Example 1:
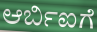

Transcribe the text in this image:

ಆರ್ಬಿಐಗೆ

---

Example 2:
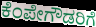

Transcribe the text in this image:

ಕೆಂಪೇಗೌಡರಿಗೆ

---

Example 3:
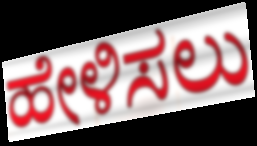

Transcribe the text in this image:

ಹೇಳಿಸಲು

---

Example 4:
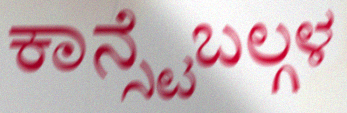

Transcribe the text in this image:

ಕಾನ್ಸ್ಟೆಬಲ್ಗಳ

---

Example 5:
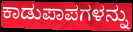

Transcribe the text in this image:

ಕಾಡುಪಾಪಗಳನ್ನು